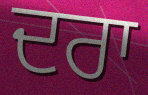
ਦਰਾ